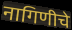
नागिणीचे